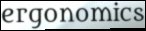
ergonomics